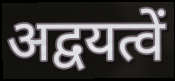
अद्वयत्वें